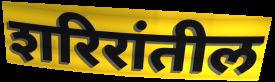
शरिरांतील